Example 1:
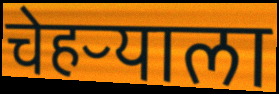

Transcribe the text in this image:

चेहऱ्याला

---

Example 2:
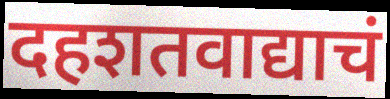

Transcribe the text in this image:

दहशतवाद्याचं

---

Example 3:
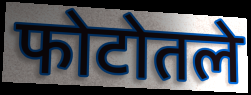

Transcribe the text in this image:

फोटोतले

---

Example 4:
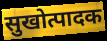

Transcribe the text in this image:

सुखोत्पादक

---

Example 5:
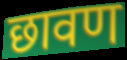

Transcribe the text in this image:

छावण